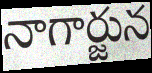
నాగార్జున